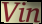
Vin